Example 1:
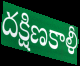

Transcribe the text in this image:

దక్షిణకాళీ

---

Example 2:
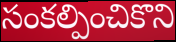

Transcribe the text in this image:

సంకల్పించికొని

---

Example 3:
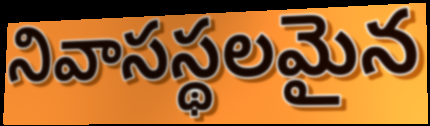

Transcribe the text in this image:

నివాసస్థలమైన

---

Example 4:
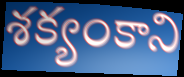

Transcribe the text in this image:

శక్యంకాని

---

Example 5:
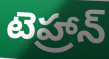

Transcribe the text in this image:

టెహ్రాన్